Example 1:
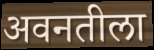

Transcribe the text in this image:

अवनतीला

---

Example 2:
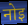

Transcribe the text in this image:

नोइ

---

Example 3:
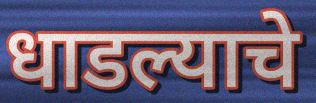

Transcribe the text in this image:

धाडल्याचे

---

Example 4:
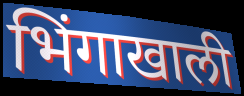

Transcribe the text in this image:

भिंगाखाली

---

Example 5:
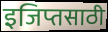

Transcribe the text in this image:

इजिप्तसाठी